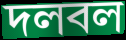
দলবল